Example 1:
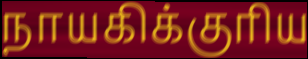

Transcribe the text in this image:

நாயகிக்குரிய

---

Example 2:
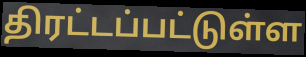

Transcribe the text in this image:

திரட்டப்பட்டுள்ள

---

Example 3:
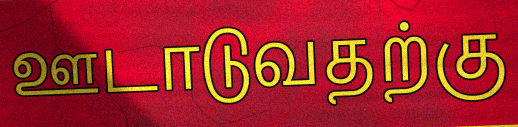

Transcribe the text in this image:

ஊடாடுவதற்கு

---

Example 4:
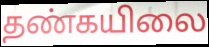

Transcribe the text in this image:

தண்கயிலை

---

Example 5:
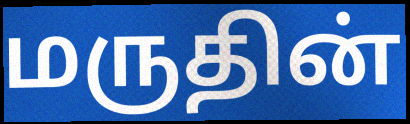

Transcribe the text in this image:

மருதின்